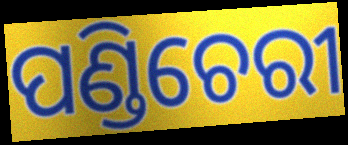
ପଣ୍ଡିଚେରୀ